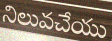
నిలువచేయు